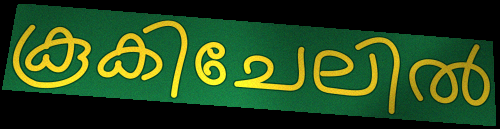
കൂകിചേലിൽ